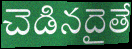
చెడినదైతే